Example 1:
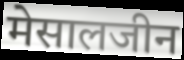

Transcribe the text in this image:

मेसालजीन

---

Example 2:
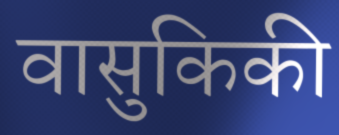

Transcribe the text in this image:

वासुकिकी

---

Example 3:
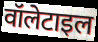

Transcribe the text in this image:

वॉलेटाइल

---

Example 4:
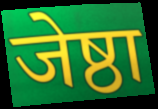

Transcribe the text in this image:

जेष्ठा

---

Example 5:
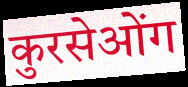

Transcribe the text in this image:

कुरसेओंग